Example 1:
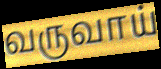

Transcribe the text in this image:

வருவாய்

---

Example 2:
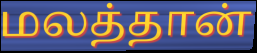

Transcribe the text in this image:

மலத்தான்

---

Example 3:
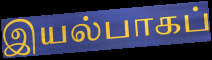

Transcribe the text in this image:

இயல்பாகப்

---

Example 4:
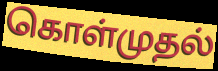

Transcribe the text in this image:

கொள்முதல்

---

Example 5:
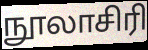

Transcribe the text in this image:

நூலாசிரி